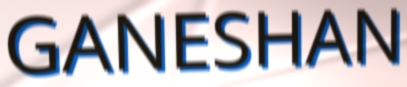
GANESHAN